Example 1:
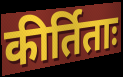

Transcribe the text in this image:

कीर्तिताः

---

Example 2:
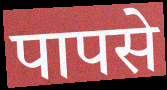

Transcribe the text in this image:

पापसे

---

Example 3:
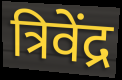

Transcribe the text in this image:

त्रिवेंद्र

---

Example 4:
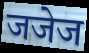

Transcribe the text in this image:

जजेज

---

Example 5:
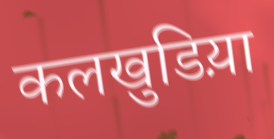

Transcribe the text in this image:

कलखुडिय़ा